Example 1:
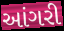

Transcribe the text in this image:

આંગરી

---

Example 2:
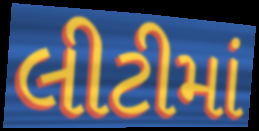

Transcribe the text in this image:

લીટીમાં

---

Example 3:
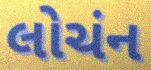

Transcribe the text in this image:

લોચંન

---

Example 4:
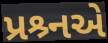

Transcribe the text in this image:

પ્રશ્ર્નએ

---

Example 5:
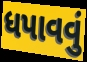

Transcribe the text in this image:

ધપાવવું